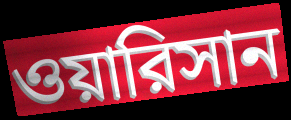
ওয়ারিসান